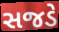
સજડે